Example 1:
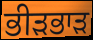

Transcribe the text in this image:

ਭੀੜਭਾੜ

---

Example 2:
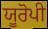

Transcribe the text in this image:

ਯੂਰੋਪੀ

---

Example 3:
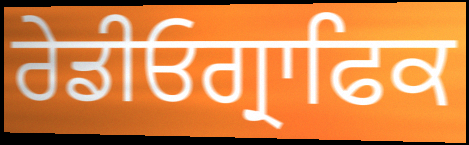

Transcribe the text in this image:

ਰੇਡੀਓਗ੍ਰਾਫਿਕ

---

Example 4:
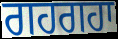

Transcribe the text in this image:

ਗਹਗਹਾ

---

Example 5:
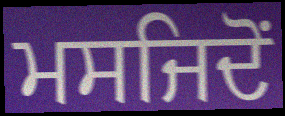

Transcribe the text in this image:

ਮਸਜਿਦੋਂ